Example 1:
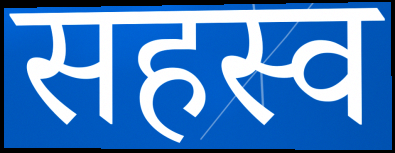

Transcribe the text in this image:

सहस्व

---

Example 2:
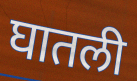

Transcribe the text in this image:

घातली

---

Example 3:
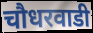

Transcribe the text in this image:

चौधरवाडी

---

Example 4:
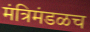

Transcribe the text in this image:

मंत्रिमंडळच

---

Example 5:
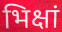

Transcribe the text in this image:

भिक्षां